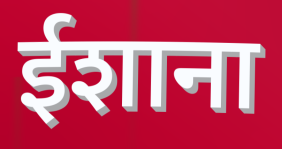
ईशाना